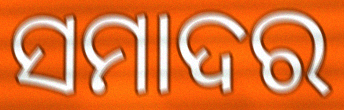
ସମାଦର